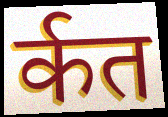
र्कत